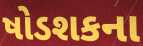
ષોડશકના